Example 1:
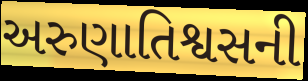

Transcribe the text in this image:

અરુણાતિશ્વસની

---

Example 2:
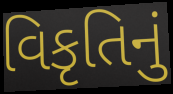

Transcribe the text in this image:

વિકૃતિનું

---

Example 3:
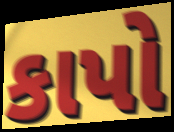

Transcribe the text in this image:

કાપો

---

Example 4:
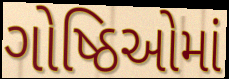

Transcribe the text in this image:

ગોષ્ઠિઓમાં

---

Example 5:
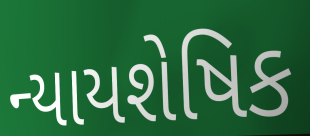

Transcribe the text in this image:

ન્યાયશેષિક